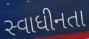
સ્વાધીનતા